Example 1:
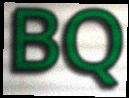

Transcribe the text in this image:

BQ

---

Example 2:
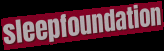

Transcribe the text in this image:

sleepfoundation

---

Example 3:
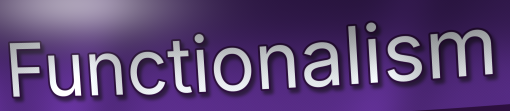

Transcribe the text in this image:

Functionalism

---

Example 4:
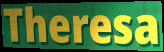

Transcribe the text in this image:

Theresa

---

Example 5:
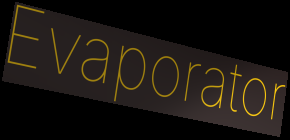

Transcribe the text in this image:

Evaporator